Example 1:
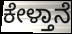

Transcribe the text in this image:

ಕೇಳ್ತಾನೆ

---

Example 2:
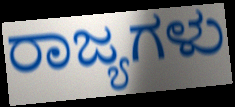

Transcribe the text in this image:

ರಾಜ್ಯಗಳು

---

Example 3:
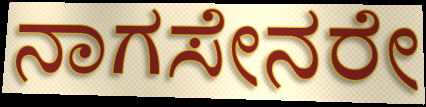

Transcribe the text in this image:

ನಾಗಸೇನರೇ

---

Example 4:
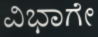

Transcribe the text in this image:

ವಿಭಾಗೇ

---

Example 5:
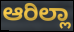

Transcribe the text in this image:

ಆರಿಲ್ಲಾ